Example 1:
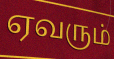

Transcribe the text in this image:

ஏவரும்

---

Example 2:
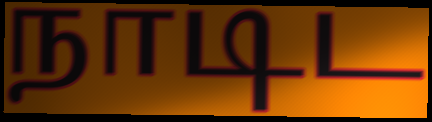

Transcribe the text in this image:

நாடிட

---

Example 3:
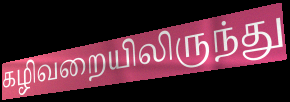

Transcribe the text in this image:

கழிவறையிலிருந்து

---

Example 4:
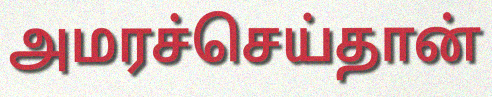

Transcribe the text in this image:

அமரச்செய்தான்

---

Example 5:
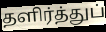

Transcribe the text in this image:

தளிர்த்துப்